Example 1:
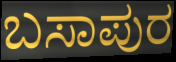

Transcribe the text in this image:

ಬಸಾಪುರ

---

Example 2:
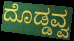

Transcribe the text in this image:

ದೊಡ್ಡವ್ವ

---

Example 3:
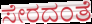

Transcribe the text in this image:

ಸೇರದಂತೆ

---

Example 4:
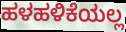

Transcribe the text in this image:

ಹಳಹಳಿಕೆಯಲ್ಲ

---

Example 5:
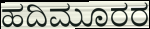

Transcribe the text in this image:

ಹದಿಮೂರರ